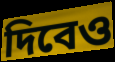
দিবেও